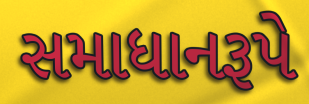
સમાધાનરૂપે